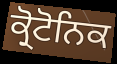
ਕ੍ਰੋਟੋਨਿਕ